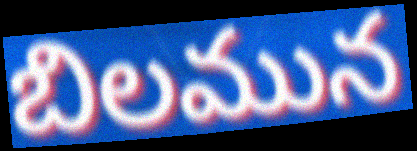
బిలమున